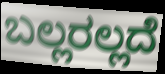
ಬಲ್ಲರಲ್ಲದೆ